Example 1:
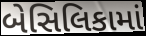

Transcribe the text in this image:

બેસિલિકામાં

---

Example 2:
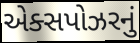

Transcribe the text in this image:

એક્સપોઝરનું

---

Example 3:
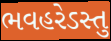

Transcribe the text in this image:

ભવહરેઽસ્તુ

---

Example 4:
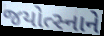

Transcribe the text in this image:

જયોત્સ્નાને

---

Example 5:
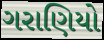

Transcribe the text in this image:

ગરાણિયો